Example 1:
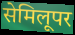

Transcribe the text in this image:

सेमिलूपर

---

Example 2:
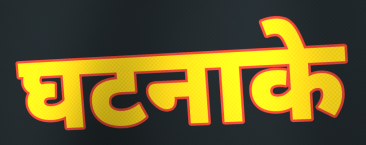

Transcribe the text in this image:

घटनाके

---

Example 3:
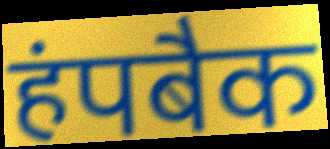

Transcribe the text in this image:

हंपबैक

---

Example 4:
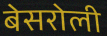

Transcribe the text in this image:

बेसरोली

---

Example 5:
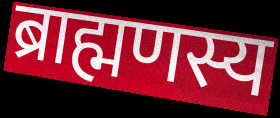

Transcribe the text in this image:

ब्राह्मणस्य